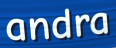
andra